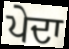
ਪੇਦਾ